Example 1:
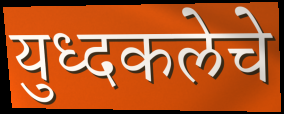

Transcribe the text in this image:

युध्दकलेचे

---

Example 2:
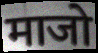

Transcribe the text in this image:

माजो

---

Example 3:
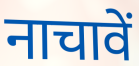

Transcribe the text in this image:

नाचावें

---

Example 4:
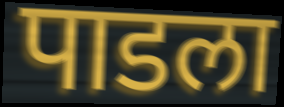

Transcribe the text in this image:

पाडला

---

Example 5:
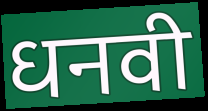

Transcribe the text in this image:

धनवी